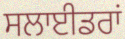
ਸਲਾਈਡਰਾਂ